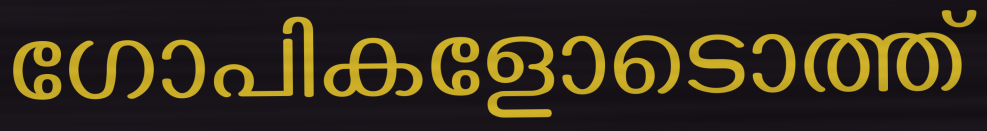
ഗോപികളോടൊത്ത്